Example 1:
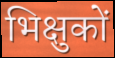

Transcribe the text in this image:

भिक्षुकों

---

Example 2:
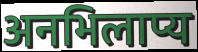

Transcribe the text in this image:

अनभिलाप्य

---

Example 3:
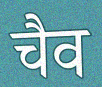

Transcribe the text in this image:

चैव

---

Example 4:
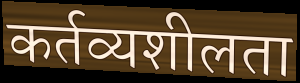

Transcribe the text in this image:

कर्तव्यशीलता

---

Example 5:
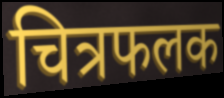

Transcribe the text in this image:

चित्रफलक